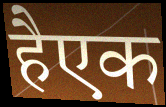
हैएक